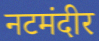
नटमंदीर